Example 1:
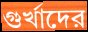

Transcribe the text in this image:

গুর্খাদের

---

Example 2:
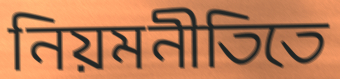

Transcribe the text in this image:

নিয়মনীতিতে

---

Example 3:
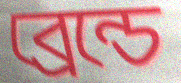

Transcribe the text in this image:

ব্রেন্ডে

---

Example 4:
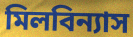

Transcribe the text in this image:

মিলবিন্যাস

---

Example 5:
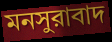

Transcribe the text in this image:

মনসুরাবাদ